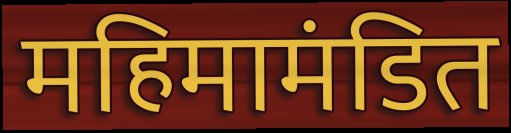
महिमामंडित